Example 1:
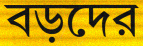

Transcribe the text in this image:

বড়দের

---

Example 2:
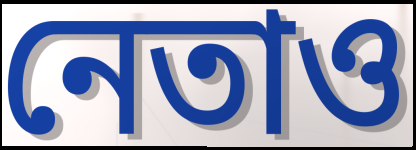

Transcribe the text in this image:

নেতাও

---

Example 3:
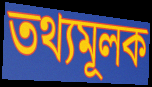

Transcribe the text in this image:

তথ্যমূলক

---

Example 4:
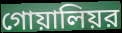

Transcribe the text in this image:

গোয়ালিয়র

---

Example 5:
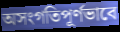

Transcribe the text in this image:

অসংগতিপূর্ণভাবে